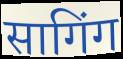
सागिंग